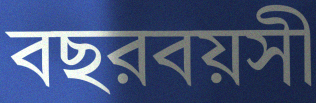
বছরবয়সী